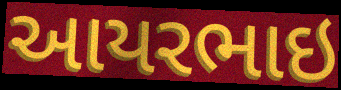
આયરભાઇ